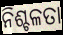
ନିଶ୍ଚଳତା